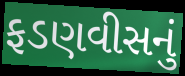
ફડણવીસનું